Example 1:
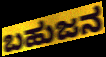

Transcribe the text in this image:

ಬಹುಜನ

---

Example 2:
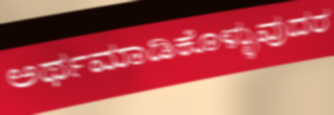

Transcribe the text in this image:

ಅರ್ಥಮಾಡಿಕೊಳ್ಳುವುದರ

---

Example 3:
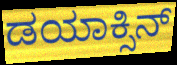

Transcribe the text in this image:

ಡಯಾಕ್ಸಿನ್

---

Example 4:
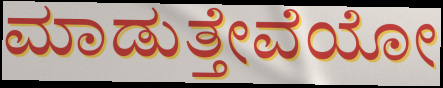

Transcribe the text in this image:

ಮಾಡುತ್ತೇವೆಯೋ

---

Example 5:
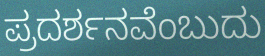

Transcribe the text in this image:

ಪ್ರದರ್ಶನವೆಂಬುದು